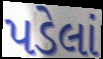
પડેલાં